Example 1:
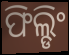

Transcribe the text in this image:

ଫିଲ୍ଡିଂ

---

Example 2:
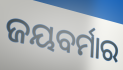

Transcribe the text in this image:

ଜୟବର୍ମାର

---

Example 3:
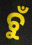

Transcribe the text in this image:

ଚୁଁ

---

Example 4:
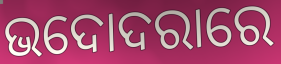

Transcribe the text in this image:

ଭଦୋଦରାରେ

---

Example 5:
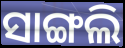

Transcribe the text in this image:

ସାଙ୍ଗଲି